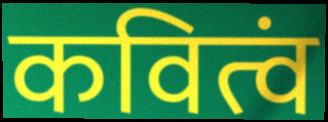
कवित्वं